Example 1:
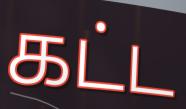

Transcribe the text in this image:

கட்ட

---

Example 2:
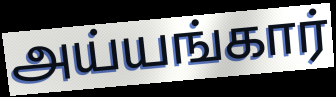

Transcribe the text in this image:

அய்யங்கார்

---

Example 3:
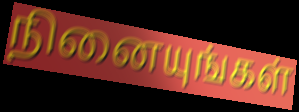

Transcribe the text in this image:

நினையுங்கள்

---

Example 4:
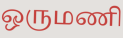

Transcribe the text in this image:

ஒருமணி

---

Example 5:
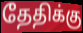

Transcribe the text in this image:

தேதிக்கு